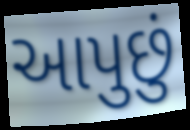
આપુછું